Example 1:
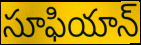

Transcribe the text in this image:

సూఫియాన్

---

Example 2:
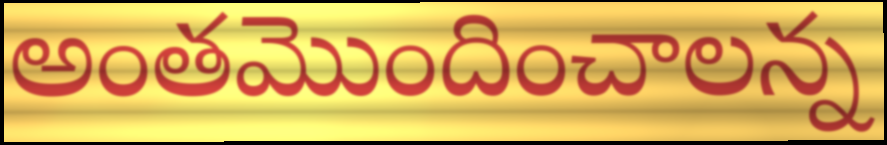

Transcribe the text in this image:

అంతమొందించాలన్న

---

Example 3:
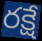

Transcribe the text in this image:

రక్షే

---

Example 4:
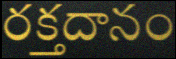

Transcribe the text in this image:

రక్తదానం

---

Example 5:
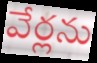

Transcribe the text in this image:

వేర్లను